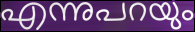
എന്നുപറയും